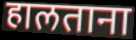
हालताना